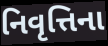
નિવૃત્તિના